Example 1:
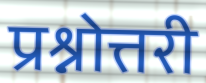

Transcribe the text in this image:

प्रश्नोत्तरी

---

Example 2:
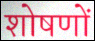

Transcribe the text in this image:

शोषणों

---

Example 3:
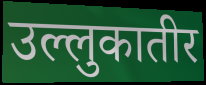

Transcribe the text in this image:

उल्लुकातीर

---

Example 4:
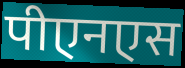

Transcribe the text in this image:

पीएनएस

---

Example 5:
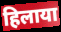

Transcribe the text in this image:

हिलाया